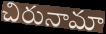
చిరునామా